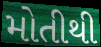
મોતીથી